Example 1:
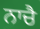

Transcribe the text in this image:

ਨਾਚੈ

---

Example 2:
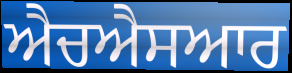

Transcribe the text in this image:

ਐਚਐਸਆਰ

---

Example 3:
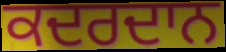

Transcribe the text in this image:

ਕਦਰਦਾਨ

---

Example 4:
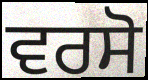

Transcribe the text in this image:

ਵਰਸੋ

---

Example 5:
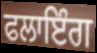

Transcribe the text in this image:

ਫਲਾਇੰਗ